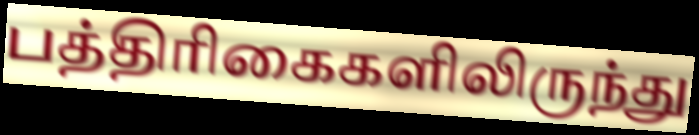
பத்திரிகைகளிலிருந்து